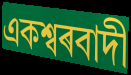
একশ্বৰবাদী